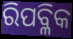
ରିପବ୍ଳିକ